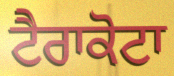
ਟੈਰਾਕੋਟਾ